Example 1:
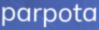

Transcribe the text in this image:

parpota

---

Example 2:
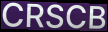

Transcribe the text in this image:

CRSCB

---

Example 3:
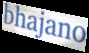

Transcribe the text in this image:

bhajano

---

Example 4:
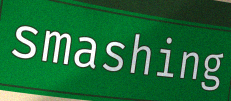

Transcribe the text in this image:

smashing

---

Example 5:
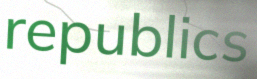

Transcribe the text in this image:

republics